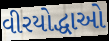
વીરયોદ્ધાઓ